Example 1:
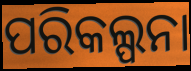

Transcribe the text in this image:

ପରିକଲ୍ପନା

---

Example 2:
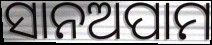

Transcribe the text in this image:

ସାନଅପାମ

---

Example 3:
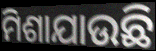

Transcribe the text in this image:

ମିଶାଯାଉଛି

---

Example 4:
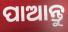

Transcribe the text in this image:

ପାଆନ୍ତୁ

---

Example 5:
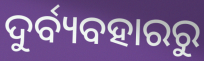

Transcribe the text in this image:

ଦୁର୍ବ୍ୟବହାରରୁ